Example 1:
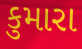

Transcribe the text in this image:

કુમારા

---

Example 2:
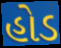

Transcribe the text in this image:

હોડ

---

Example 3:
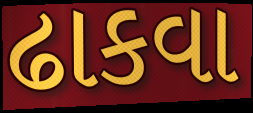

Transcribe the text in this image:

ઢાકવા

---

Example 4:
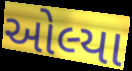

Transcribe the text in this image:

ઓલ્યા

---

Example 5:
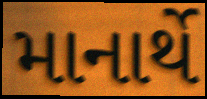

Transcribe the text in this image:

માનાર્થે